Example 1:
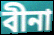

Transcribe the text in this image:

বীনা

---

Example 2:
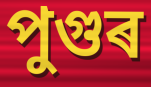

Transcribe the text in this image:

পুগুৰ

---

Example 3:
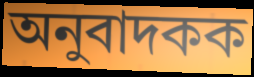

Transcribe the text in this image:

অনুবাদকক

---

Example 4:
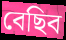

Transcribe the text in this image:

বেছিব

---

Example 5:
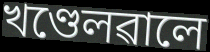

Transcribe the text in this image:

খণ্ডেলৱালে